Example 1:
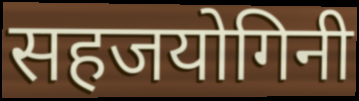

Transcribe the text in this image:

सहजयोगिनी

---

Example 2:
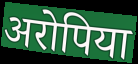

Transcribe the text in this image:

अरोपिया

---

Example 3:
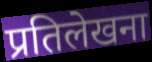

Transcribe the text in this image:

प्रतिलेखना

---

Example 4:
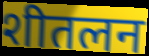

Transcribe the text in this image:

शीतलन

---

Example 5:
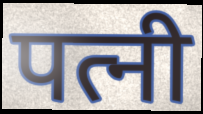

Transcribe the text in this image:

पत्‍नी